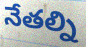
నేతల్ని